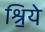
श्रि॒ये